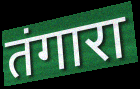
तंगारा